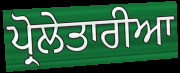
ਪ੍ਰੋਲੇਤਾਰੀਆ